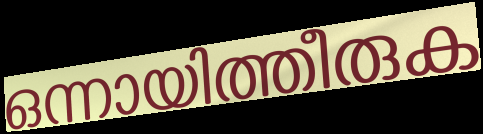
ഒന്നായിത്തീരുക